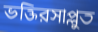
ভক্তিরসাপ্লুত